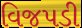
વિજપડી